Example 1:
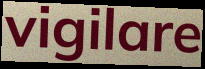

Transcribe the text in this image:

vigilare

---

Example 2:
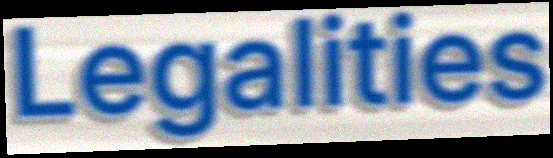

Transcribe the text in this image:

Legalities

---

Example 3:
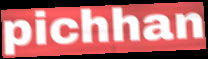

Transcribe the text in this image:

pichhan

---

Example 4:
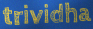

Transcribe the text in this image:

trividha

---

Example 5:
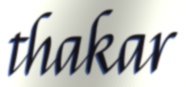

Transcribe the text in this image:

thakar